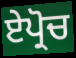
ਏਪ੍ਰੋਚ